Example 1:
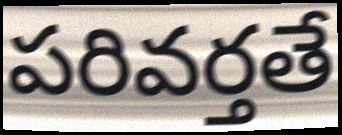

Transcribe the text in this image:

పరివర్తతే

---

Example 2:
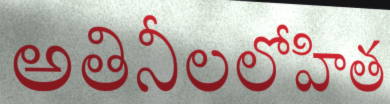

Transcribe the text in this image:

అతినీలలోహిత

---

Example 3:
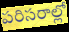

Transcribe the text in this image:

పరిసరాల్లో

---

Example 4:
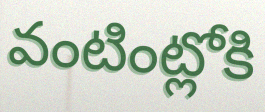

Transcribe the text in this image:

వంటింట్లోకి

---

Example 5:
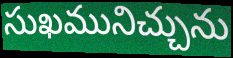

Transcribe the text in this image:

సుఖమునిచ్చును